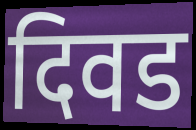
दिवड